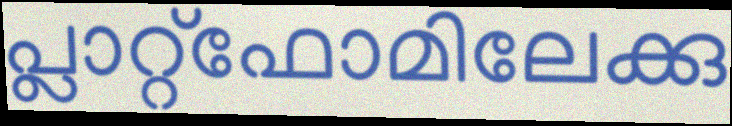
പ്ലാറ്റ്ഫോമിലേക്കു